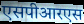
एसपीआरएस